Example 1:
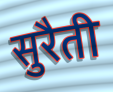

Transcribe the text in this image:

सुरैती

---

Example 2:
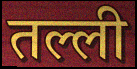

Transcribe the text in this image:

तल्ली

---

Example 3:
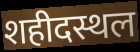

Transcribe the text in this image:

शहीदस्थल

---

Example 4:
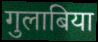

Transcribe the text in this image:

गुलाबिया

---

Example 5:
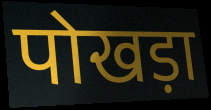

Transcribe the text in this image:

पोखड़ा